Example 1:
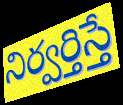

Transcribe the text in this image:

నిర్వర్తిస్తే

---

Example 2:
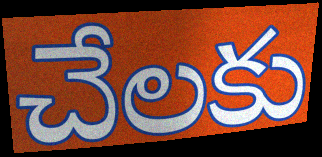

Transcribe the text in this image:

చేలకు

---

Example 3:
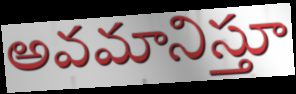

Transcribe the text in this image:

అవమానిస్తూ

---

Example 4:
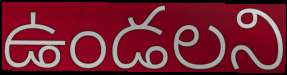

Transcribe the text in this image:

ఉండలని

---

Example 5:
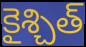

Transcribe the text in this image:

కైశ్చిత్